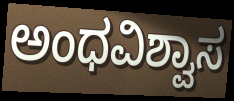
ಅಂಧವಿಶ್ವಾಸ